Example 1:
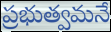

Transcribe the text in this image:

ప్రభుత్వమనే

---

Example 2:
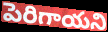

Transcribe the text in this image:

పెరిగాయని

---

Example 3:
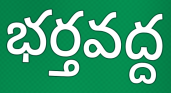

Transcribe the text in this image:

భర్తవద్ద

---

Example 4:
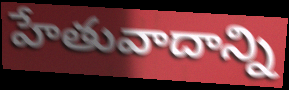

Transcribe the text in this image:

హేతువాదాన్ని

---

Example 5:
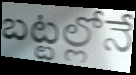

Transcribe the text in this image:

బట్టల్లోనే